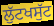
ਲੁੱਟਖਸੁੱਟ